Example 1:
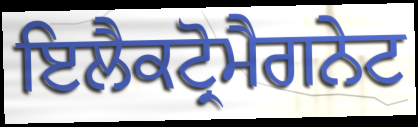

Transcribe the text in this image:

ਇਲੈਕਟ੍ਰੋਮੈਗਨੇਟ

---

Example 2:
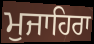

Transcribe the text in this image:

ਮੁਜਾਹਿਰਾ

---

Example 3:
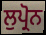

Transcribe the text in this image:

ਲੁਪ੍ਰੋਨ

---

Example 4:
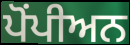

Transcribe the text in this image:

ਪੋਂਪੀਅਨ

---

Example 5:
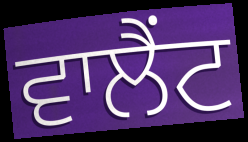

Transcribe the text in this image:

ਵਾਲੈਂਟ